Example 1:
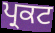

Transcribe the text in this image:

ਪ੍ਰਕਟ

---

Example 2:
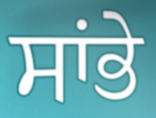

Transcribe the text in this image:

ਸਾਂਭੇ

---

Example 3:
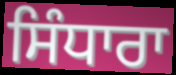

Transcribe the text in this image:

ਸਿੰਧਾਰਾ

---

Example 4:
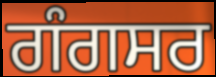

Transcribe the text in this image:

ਗੰਗਸਰ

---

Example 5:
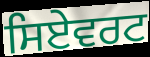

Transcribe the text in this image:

ਸਿਏਵਰਟ